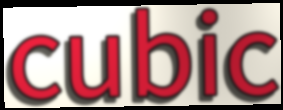
cubic